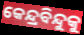
କେନ୍ଦ୍ରବିନ୍ଦୁକୁ